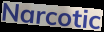
Narcotic